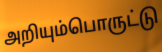
அறியும்பொருட்டு